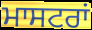
ਮਾਸਟਰਾਂ